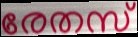
രേതസ്